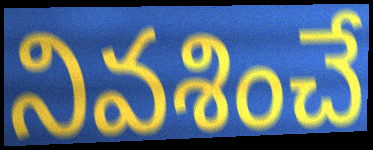
నివశించే